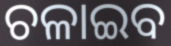
ଚଳାଇବ